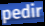
pedir